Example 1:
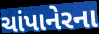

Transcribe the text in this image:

ચાંપાનેરના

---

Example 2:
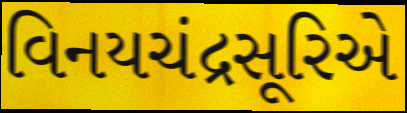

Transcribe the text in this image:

વિનયચંદ્રસૂરિએ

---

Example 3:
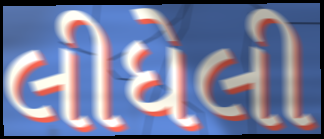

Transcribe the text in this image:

લીધેલી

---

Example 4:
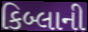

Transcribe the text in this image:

કિબ્લાની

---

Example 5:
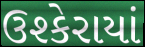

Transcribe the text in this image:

ઉશ્કેરાયાં